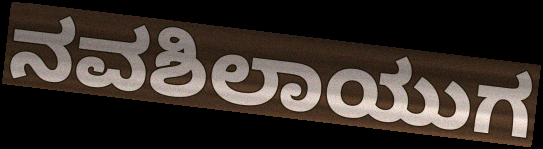
ನವಶಿಲಾಯುಗ